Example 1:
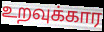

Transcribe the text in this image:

உறவுக்கார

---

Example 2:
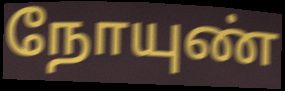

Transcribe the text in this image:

நோயுண்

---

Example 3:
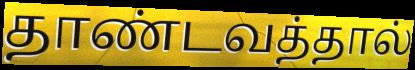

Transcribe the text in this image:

தாண்டவத்தால்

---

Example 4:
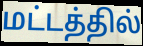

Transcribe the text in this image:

மட்டத்தில்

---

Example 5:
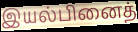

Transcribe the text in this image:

இயல்பினைத்